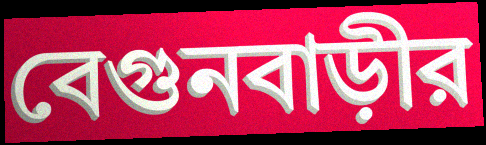
বেগুনবাড়ীর